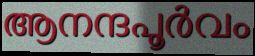
ആനന്ദപൂർവം